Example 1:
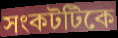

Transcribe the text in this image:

সংকটটিকে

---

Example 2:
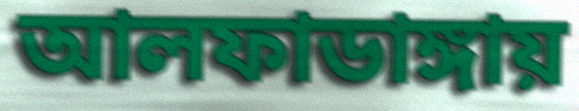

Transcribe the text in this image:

আলফাডাঙ্গায়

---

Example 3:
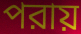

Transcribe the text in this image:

পরায়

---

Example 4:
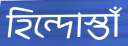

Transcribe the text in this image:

হিন্দোস্তাঁ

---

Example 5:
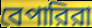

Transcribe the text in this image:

বেপারিরা